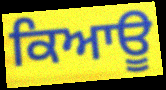
ਕਿਆਊ